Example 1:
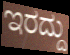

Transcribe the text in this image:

ಇರದ್ದು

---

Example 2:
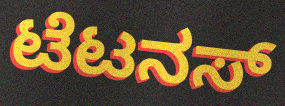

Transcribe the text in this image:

ಟೆಟನಸ್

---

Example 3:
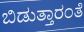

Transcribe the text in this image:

ಬಿಡುತ್ತಾರಂತೆ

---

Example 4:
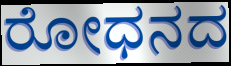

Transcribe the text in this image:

ರೋಧನದ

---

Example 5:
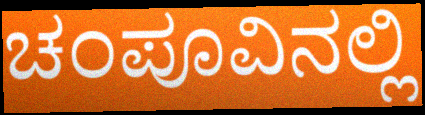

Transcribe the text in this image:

ಚಂಪೂವಿನಲ್ಲಿ